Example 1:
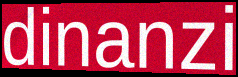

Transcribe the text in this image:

dinanzi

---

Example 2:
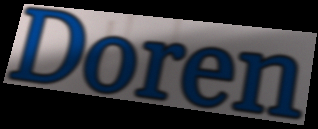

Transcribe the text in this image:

Doren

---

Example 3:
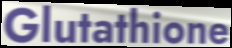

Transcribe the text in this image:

Glutathione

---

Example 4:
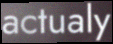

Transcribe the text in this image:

actualy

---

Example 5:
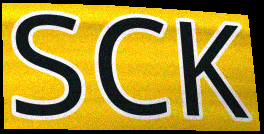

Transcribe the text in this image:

SCK